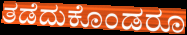
ತಡೆದುಕೊಂಡರೂ